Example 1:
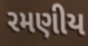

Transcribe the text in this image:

રમણીય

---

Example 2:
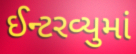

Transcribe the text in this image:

ઈન્ટરવ્યુમાં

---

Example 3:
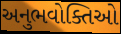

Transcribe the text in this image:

અનુભવોક્તિઓ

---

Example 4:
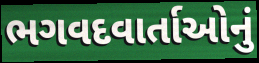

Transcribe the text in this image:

ભગવદવાર્તાઓનું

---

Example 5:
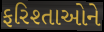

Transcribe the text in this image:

ફરિશ્તાઓને